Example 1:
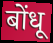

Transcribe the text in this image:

बोंधू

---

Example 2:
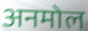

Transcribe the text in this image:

अनमोल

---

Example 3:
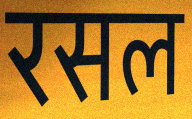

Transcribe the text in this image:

रसल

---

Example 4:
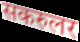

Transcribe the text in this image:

सकरुलर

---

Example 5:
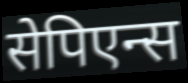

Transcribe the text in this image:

सेपिएन्स